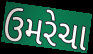
ઉમરેચા